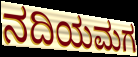
ನದಿಯಮಗ